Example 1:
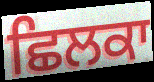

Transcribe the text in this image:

ਛਿਲਕਾ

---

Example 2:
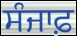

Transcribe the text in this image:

ਸੰਜਾਫ਼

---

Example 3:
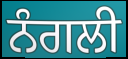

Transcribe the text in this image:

ਨੰਗਲੀ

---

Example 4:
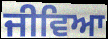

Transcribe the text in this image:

ਜੀਵਿਆ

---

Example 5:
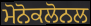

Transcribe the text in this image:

ਮੋਨੋਕਲੋਨਲ